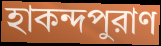
হাকন্দপুরাণ